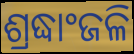
ଶ୍ରଦ୍ଧାଂଜଳି